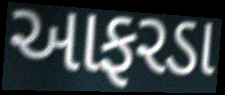
આફરડા